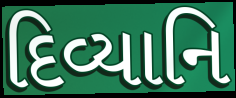
દિવ્યાનિ